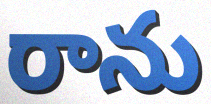
రాను